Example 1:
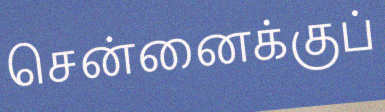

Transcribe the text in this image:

சென்னைக்குப்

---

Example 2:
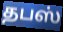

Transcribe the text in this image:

தபஸ்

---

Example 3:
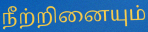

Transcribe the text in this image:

நீற்றினையும்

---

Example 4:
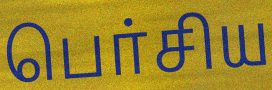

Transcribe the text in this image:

பெர்சிய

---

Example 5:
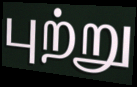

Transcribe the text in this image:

புற்று